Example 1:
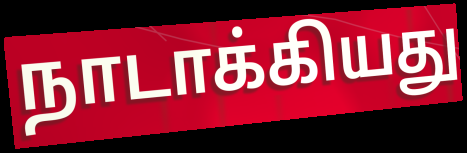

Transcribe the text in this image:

நாடாக்கியது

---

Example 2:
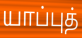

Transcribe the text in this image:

யாப்புத்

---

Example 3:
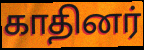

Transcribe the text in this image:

காதினர்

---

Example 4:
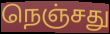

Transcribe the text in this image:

நெஞ்சது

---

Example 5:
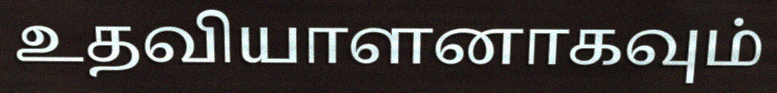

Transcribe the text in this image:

உதவியாளனாகவும்